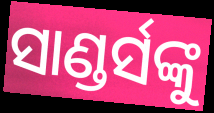
ସାଣ୍ଡର୍ସଙ୍କୁ